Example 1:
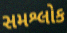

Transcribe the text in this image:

સમશ્લોક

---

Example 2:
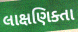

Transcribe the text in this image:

લાક્ષણિક્તા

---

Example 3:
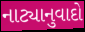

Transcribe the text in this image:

નાટ્યાનુવાદો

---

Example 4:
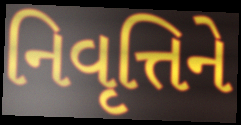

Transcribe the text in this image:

નિવૃત્તિને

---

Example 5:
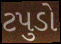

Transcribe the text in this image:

ટપુડો